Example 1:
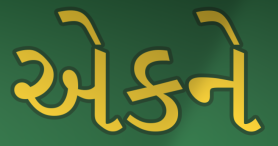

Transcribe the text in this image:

એકને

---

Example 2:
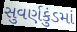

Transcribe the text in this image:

સુવર્ણકુંડમાં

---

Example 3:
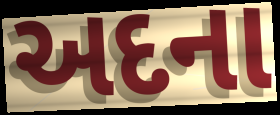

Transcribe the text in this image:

અદના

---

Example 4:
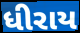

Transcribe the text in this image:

ધીરાય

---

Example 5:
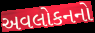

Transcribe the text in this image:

અવલોકનનો